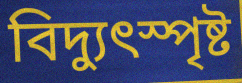
বিদ্যুৎস্পৃষ্ট